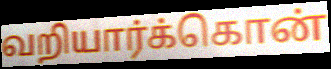
வறியார்க்கொன்